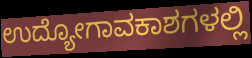
ಉದ್ಯೋಗಾವಕಾಶಗಳಲ್ಲಿ